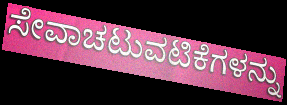
ಸೇವಾಚಟುವಟಿಕೆಗಳನ್ನು